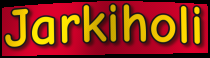
Jarkiholi